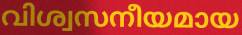
വിശ്വസനീയമായ